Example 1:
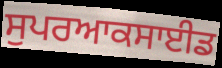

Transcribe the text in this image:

ਸੁਪਰਆਕਸਾਈਡ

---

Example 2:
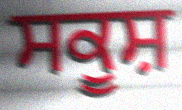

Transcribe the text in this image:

ਸਕੂਸ਼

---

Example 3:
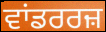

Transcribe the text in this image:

ਵਾਂਡਰਰਜ਼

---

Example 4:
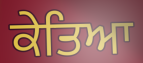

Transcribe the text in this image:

ਕੇਤਿਆ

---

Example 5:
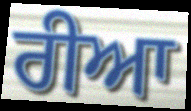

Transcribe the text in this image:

ਰੀਆ